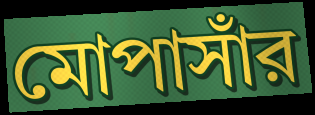
মোপাসাঁর